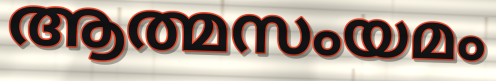
ആത്മസംയമം